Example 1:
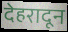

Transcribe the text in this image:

देहरादून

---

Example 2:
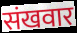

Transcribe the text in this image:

संखवार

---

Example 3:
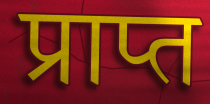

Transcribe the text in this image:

प्राप्‍त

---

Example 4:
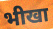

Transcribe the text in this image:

भीखा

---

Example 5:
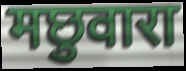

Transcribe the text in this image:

मछुवारा